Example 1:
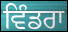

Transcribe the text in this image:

ਵਿੰਡਰਾ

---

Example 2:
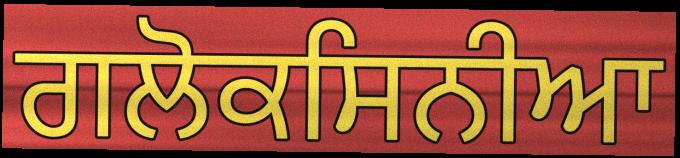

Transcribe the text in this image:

ਗਲੋਕਸਿਨੀਆ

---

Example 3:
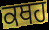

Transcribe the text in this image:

ਕਥਹ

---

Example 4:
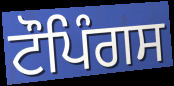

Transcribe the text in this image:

ਟੌਪਿੰਗਸ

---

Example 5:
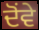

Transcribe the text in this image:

ਦੋਂਵੇ